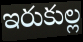
ఇరుకుల్ల